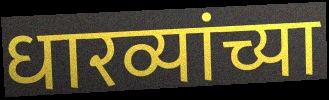
धारव्यांच्या